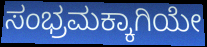
ಸಂಭ್ರಮಕ್ಕಾಗಿಯೇ